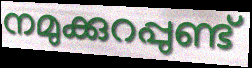
നമുക്കുറപ്പുണ്ട്